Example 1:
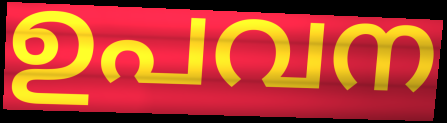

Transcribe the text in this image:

ഉപവന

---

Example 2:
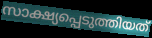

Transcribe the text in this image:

സാക്ഷ്യപ്പെടുത്തിയത്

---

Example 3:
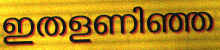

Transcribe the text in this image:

ഇതളണിഞ്ഞ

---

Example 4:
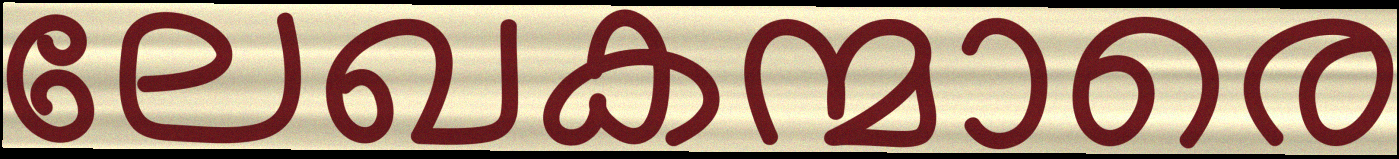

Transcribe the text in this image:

ലേഖകന്മാരെ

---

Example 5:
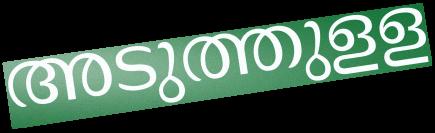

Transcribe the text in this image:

അടുത്തുളള